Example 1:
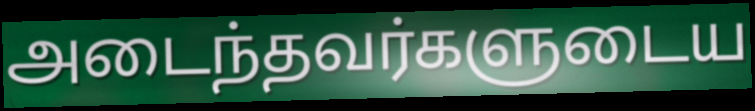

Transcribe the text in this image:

அடைந்தவர்களுடைய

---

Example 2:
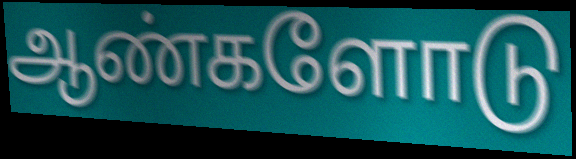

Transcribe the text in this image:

ஆண்களோடு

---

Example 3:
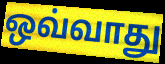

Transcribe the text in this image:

ஒவ்வாது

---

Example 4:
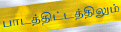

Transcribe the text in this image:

பாடத்திட்டத்திலும்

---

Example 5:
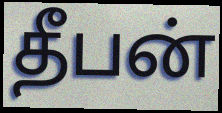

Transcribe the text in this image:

தீபன்